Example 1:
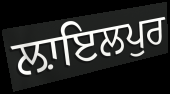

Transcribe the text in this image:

ਲ਼ਾਇਲਪੁਰ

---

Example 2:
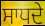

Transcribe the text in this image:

ਸਾਧਦੇ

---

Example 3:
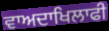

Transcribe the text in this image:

ਵਾਅਦਾਖਿਲਾਫੀ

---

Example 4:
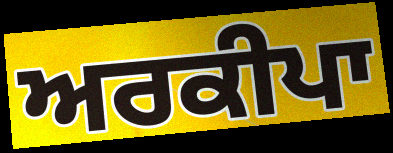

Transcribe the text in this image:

ਅਰਕੀਪਾ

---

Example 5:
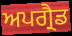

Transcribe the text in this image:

ਅਪਗ੍ਰੈਡ